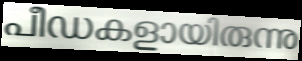
പീഡകളായിരുന്നു